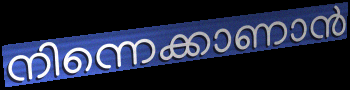
നിന്നെക്കാണാൻ